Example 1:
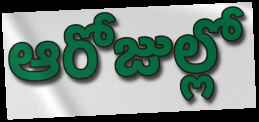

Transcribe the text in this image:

ఆరోజుల్లో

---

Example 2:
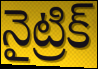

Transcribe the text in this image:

నైట్రిక్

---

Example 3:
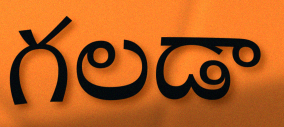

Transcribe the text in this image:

గలడా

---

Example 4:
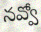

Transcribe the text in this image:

నవ్వో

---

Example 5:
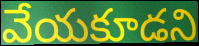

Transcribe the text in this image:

వేయకూడని